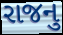
રાજનુ